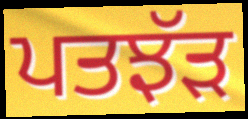
ਪਤਝੱੜ